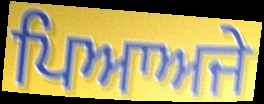
ਪਿਆਅਜੇ